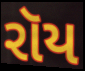
રૉય